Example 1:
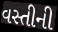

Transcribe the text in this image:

વસ્તીની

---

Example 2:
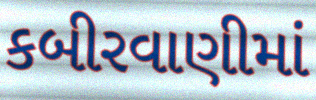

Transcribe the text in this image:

કબીરવાણીમાં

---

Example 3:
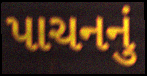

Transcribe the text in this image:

પાચનનું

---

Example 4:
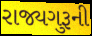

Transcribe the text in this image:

રાજ્યગુરૂની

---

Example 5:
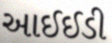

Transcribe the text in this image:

આઈઈડી